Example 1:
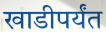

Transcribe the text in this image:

खाडीपर्यंत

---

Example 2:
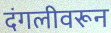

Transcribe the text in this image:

दंगलीवरून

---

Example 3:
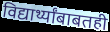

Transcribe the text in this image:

विद्यार्थ्यांबाबतही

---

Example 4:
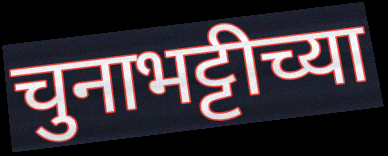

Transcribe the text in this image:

चुनाभट्टीच्या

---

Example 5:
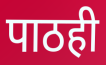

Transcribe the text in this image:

पाठही